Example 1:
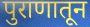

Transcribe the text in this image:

पुराणातून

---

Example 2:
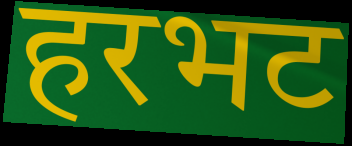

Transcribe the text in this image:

हरभट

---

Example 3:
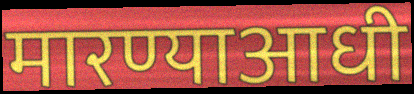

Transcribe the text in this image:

मारण्याआधी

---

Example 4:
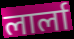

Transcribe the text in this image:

लार्ला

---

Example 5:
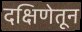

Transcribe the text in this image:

दक्षिणेतून